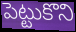
పెట్టుకొని